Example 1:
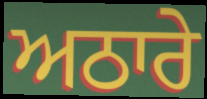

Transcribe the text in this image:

ਅਠਾਰੇ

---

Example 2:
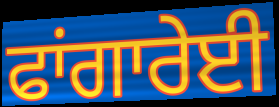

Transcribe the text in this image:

ਫਾਂਗਾਰੇਈ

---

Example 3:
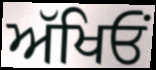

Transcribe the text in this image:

ਅੱਖਿਓਂ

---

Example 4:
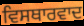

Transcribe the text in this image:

ਵਿਸਥਾਰਵਾਦ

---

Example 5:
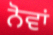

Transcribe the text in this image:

ਨੋਵਾਂ